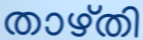
താഴ്തി